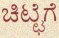
ಚಿಟ್ಟೆಗೆ